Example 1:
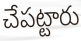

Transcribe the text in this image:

చేపట్టారు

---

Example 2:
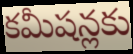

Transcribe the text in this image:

కమీషన్లకు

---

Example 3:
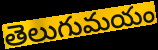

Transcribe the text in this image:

తెలుగుమయం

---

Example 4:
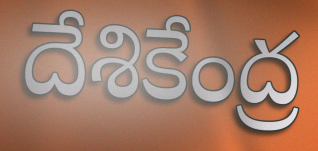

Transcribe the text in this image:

దేశికేంద్ర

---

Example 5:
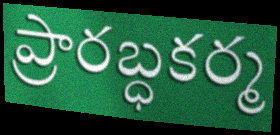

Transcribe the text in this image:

ప్రారబ్ధకర్మ